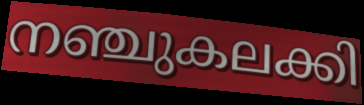
നഞ്ചുകലക്കി